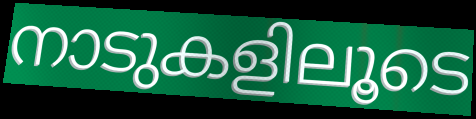
നാടുകളിലൂടെ